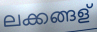
ലക്കങ്ങള്